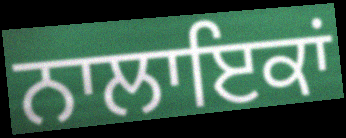
ਨਾਲਾਇਕਾਂ